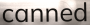
canned